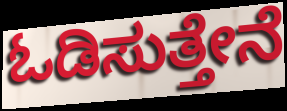
ಓಡಿಸುತ್ತೇನೆ